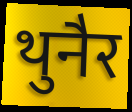
थुनैर